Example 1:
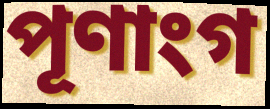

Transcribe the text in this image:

পূণাংগ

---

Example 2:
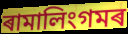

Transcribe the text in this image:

ৰামালিংগমৰ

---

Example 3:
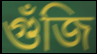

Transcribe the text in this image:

গুঁজি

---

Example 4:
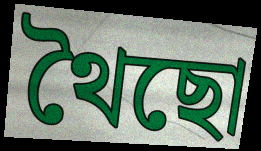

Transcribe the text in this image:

থৈছো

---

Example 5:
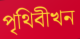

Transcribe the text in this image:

পৃথিবীখন